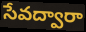
సేవద్వారా